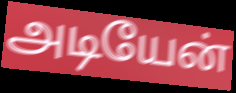
அடியேன்